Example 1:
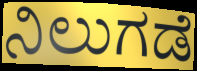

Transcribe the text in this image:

ನಿಲುಗಡೆ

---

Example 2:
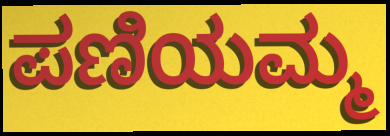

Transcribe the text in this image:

ಪಣಿಯಮ್ಮ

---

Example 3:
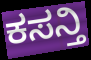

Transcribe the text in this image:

ಕಸನ್ತಿ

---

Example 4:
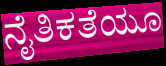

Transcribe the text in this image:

ನೈತಿಕತೆಯೂ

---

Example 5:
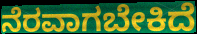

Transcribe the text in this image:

ನೆರವಾಗಬೇಕಿದೆ